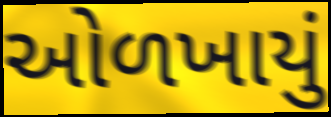
ઓળખાયું